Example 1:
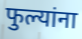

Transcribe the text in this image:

फुल्यांना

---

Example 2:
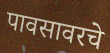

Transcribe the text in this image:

पावसावरचे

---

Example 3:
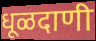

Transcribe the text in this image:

धूळदाणी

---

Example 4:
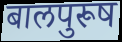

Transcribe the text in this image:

बालपुरूष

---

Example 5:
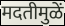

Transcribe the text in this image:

मदतीमुळें